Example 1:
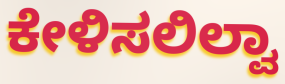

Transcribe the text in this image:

ಕೇಳಿಸಲಿಲ್ವಾ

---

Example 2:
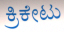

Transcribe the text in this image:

ಕ್ರಿಕೇಟು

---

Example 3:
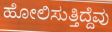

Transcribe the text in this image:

ಹೋಲಿಸುತ್ತಿದ್ದೆವು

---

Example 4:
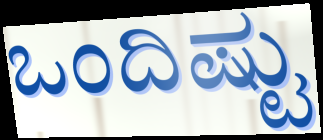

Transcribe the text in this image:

ಒಂದಿಷ್ಟು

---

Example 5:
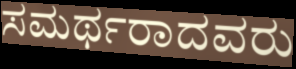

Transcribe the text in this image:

ಸಮರ್ಥರಾದವರು